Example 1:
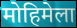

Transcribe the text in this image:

मोहिमेला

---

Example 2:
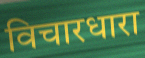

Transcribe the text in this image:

विचारधारा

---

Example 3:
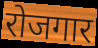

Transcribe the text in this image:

रोजगार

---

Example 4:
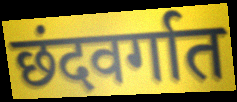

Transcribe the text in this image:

छंदवर्गात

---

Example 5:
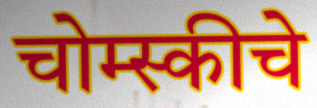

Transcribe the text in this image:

चोम्स्कीचे